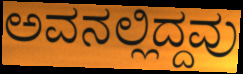
ಅವನಲ್ಲಿದ್ದವು